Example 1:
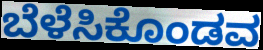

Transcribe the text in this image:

ಬೆಳೆಸಿಕೊಂಡವ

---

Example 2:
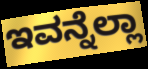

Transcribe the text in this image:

ಇವನ್ನೆಲ್ಲಾ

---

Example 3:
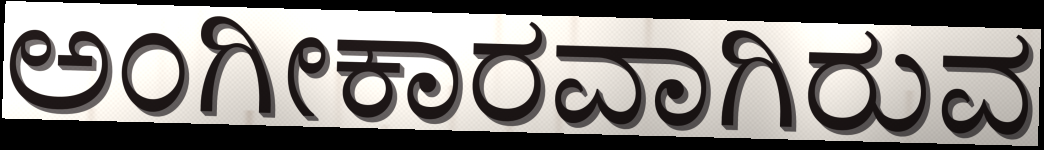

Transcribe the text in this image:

ಅಂಗೀಕಾರವಾಗಿರುವ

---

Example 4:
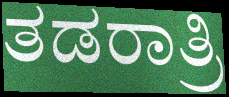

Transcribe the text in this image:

ತಡರಾತ್ರಿ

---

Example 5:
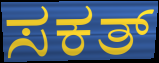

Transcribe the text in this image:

ಸಕತ್